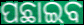
ପଛାଇବ